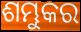
ଶମ୍ଭୁକର